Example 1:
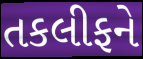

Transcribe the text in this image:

તકલીફને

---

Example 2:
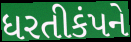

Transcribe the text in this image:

ધરતીકંપને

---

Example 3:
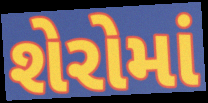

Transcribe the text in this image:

શેરોમાં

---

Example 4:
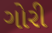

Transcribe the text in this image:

ગોરી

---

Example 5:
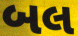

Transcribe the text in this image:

બલ